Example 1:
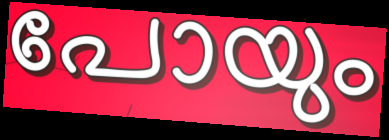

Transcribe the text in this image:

പോയും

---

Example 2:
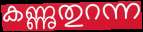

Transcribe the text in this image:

കണ്ണുതുറന്ന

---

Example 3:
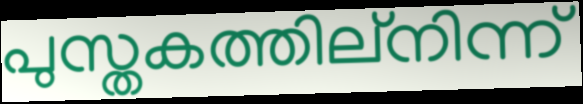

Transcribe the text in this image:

പുസ്തകത്തില്നിന്ന്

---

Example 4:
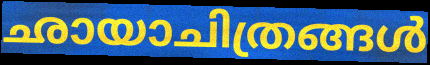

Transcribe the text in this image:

ഛായാചിത്രങ്ങൾ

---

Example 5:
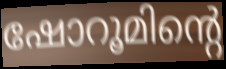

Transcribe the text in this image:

ഷോറൂമിന്റെ